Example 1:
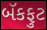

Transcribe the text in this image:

બૅકફુટ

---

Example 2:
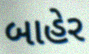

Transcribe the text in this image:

બાહેર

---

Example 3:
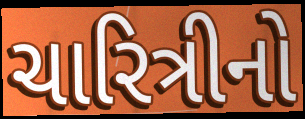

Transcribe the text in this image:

ચારિત્રીનો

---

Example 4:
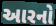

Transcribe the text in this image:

આરનો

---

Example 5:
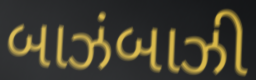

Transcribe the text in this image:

બાઝંબાઝી